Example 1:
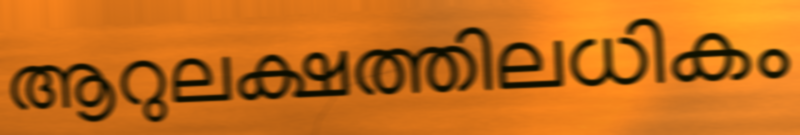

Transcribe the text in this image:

ആറുലക്ഷത്തിലധികം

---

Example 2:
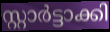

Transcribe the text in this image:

സ്റ്റാർട്ടാക്കി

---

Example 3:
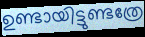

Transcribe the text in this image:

ഉണ്ടായിട്ടുണ്ടത്രേ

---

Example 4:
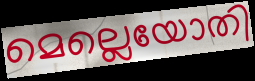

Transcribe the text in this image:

മെല്ലെയോതി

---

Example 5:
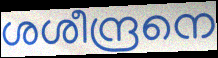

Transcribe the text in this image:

ശശീന്ദ്രനെ